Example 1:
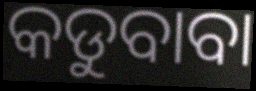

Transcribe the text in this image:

କଡୁବାବା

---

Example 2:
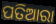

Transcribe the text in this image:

ପତିଆରା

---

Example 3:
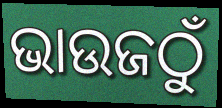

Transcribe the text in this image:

ଭାଉଜଠୁଁ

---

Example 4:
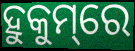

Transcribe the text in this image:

ହୁକୁମ୍‌ରେ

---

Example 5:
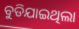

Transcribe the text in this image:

ବୁଡିଯାଇଥିଲା